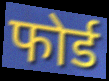
फोर्ड